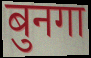
बुनगा